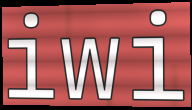
iwi